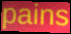
pains